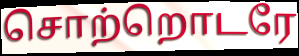
சொற்றொடரே